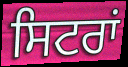
ਸਿਟਰਾਂ